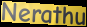
Nerathu